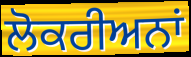
ਲੋਕਰੀਅਨਾਂ